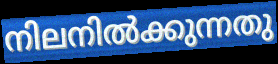
നിലനിൽക്കുന്നതു